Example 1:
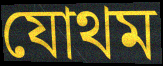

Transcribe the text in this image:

যোথম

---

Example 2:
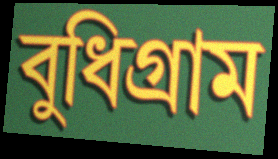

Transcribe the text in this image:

বুধিগ্রাম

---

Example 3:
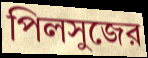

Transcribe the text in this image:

পিলসুজের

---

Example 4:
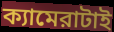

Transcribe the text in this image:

ক্যামেরাটাই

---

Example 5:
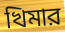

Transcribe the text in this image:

খিমার